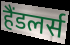
हैंडलर्स